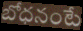
బోధనంటే